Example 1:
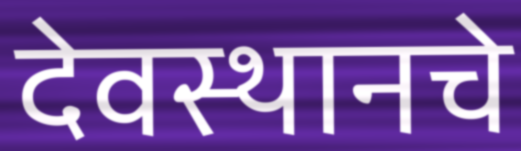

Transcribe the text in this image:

देवस्थानचे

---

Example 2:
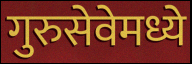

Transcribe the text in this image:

गुरुसेवेमध्ये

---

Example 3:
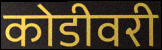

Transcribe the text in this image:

कोडीवरी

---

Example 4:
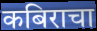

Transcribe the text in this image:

कबिराचा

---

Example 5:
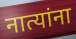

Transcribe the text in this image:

नात्यांना